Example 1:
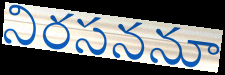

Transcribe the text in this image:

నిరసననూ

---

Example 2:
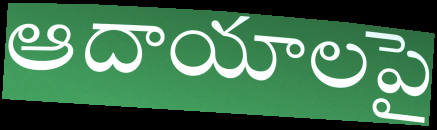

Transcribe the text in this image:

ఆదాయాలపై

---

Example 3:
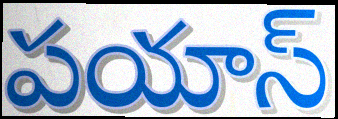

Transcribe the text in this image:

పయాస్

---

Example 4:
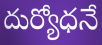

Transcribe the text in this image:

దుర్యోధనే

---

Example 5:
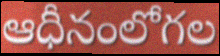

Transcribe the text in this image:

ఆధీనంలోగల